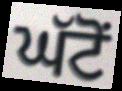
ਘੱਟੋਂ